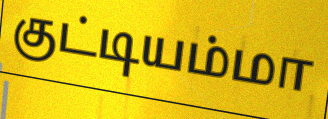
குட்டியம்மா